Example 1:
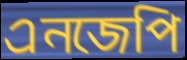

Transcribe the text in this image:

এনজেপি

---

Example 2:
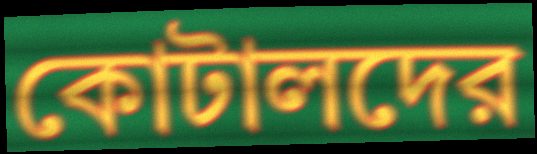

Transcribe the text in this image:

কোটালদের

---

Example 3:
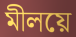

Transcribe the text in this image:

মীলয়ে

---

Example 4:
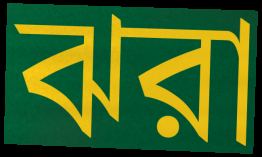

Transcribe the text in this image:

ঝরা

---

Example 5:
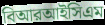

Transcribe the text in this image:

বিআরআইসিএম